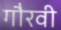
गौरवी